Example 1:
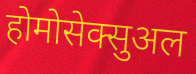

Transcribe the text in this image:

होमोसेक्सुअल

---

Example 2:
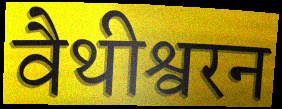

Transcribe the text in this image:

वैथीश्वरन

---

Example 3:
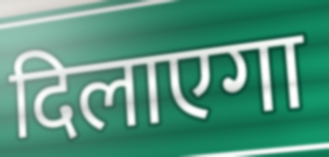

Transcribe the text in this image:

दिलाएगा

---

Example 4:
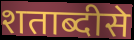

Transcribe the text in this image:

शताब्दीसे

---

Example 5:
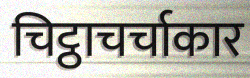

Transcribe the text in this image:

चिट्ठाचर्चाकार